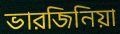
ভারজিনিয়া